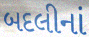
બદલીનાં